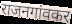
राजनगांवकर